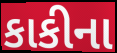
કાકીના